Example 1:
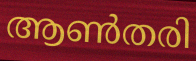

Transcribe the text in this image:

ആൺതരി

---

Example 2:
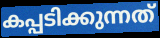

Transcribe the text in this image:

കപ്പടിക്കുന്നത്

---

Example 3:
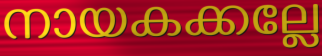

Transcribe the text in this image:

നായകക്കല്ലേ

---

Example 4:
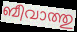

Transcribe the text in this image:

ബീവാത്തു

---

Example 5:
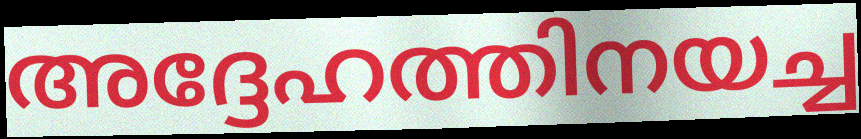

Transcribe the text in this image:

അദ്ദേഹത്തിനയച്ച